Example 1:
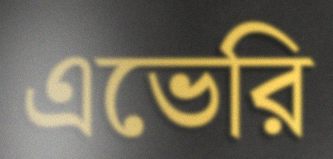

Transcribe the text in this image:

এভেরি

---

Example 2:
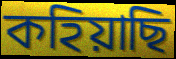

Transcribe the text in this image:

কহিয়াছি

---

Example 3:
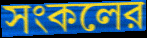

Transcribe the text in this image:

সংকলের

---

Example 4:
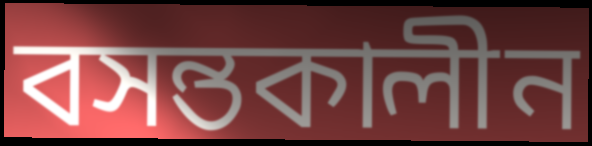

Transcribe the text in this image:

বসন্তকালীন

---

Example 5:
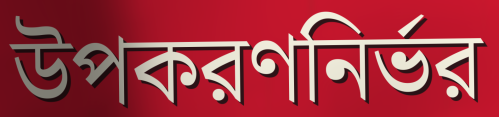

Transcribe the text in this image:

উপকরণনির্ভর